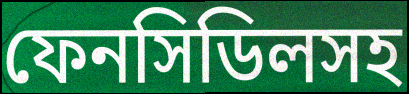
ফেনসিডিলসহ